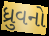
ધ્રુવનો